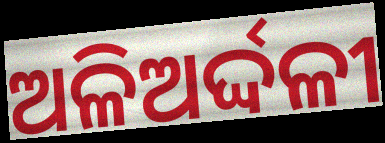
ଅଳିଅର୍ଦ୍ଦଳୀ